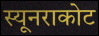
स्यूनराकोट